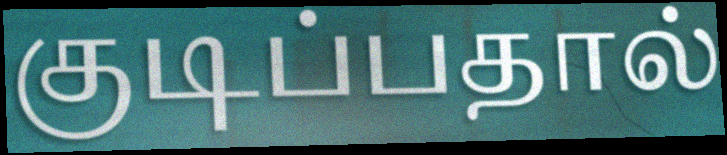
குடிப்பதால்